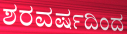
ಶರವರ್ಷದಿಂದ